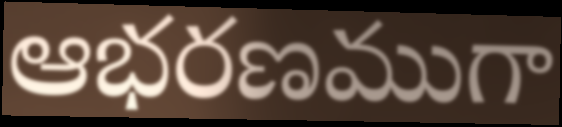
ఆభరణముగా